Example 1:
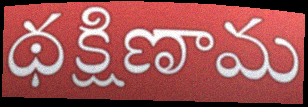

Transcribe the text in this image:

థక్షిణామ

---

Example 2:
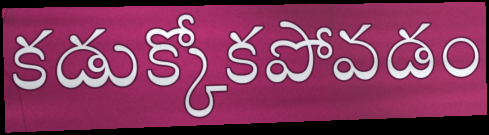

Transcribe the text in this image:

కడుక్కోకపోవడం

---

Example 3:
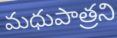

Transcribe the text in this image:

మధుపాత్రని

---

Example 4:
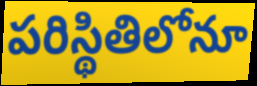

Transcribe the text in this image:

పరిస్థితిలోనూ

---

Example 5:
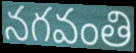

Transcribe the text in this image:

నగవంతి